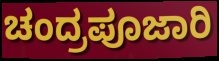
ಚಂದ್ರಪೂಜಾರಿ